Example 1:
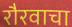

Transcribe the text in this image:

रौरवाचा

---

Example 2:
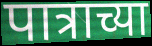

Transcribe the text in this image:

पात्राच्‍या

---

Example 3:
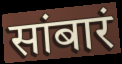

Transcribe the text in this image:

सांबारं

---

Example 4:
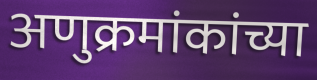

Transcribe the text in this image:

अणुक्रमांकांच्या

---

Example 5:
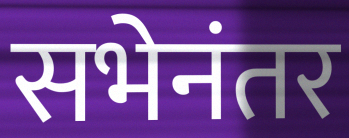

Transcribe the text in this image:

सभेनंतर